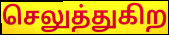
செலுத்துகிற